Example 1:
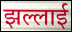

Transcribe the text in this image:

झल्लाई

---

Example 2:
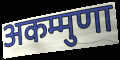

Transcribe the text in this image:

अकम्मुणा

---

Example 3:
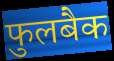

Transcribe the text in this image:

फुलबैक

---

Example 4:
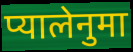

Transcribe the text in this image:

प्यालेनुमा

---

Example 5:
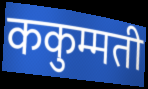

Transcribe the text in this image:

ककुम्मती